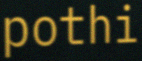
pothi